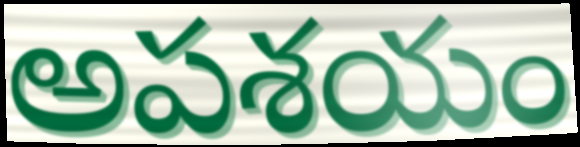
అపశయం